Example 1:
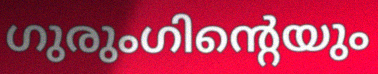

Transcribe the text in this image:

ഗുരുംഗിന്റെയും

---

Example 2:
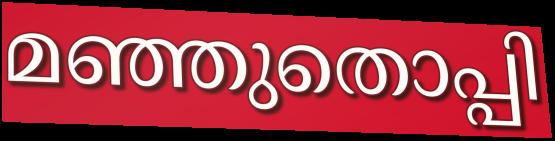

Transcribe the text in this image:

മഞ്ഞുതൊപ്പി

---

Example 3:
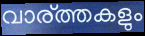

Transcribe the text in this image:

വാര്ത്തകളും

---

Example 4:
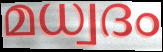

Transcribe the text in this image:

മധ്വദം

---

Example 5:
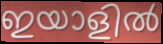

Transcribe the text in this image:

ഇയാളിൽ